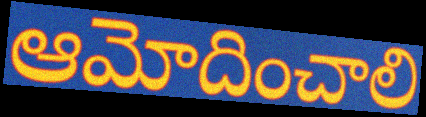
ఆమోదించాలి